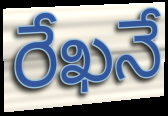
రేఖనే